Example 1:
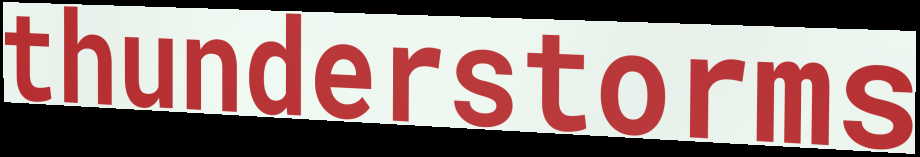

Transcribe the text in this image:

thunderstorms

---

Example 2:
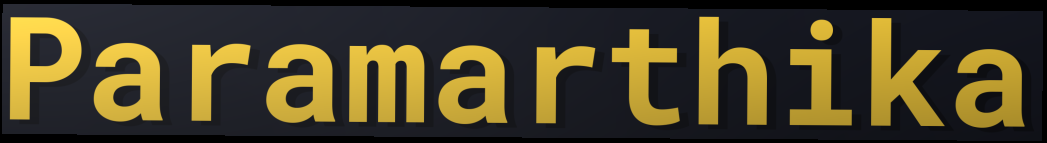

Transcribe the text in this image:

Paramarthika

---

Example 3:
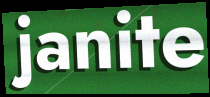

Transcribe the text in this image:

janite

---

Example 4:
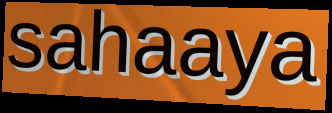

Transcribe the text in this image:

sahaaya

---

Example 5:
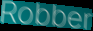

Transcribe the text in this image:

Robber